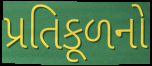
પ્રતિકૂળનો